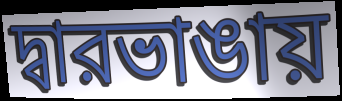
দ্বারভাঙায়